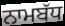
ਨਾਮਬੱਧ